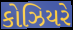
કોઝિયરે